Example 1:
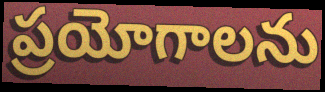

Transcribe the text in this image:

ప్రయోగాలను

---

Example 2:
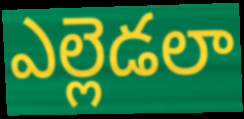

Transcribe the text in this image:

ఎల్లెడలా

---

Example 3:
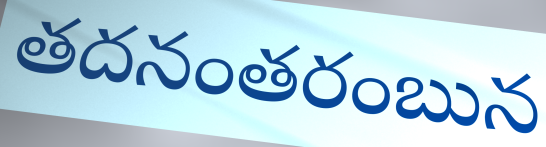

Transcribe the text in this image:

తదనంతరంబున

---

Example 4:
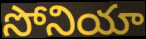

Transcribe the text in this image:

సోనియా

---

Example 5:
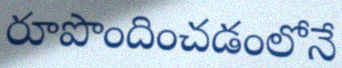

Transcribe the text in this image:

రూపొందించడంలోనే